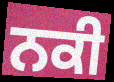
ਨਕੀ